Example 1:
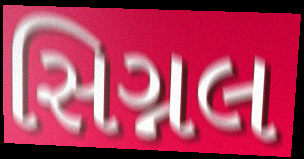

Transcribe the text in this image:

સિગ્નલ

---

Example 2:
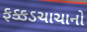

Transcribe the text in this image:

ફક્કડચાચાનો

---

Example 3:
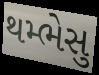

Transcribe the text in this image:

થમ્ભેસુ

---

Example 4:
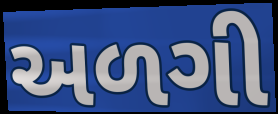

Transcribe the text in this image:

અળગી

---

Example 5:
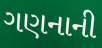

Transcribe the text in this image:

ગણનાની